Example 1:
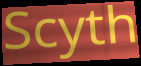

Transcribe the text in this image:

Scyth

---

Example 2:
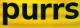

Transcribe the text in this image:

purrs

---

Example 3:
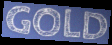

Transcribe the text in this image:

GOLD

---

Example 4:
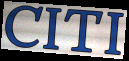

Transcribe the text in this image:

CITI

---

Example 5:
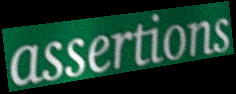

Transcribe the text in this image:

assertions